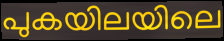
പുകയിലയിലെ